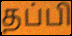
தப்பி